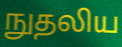
நுதலிய